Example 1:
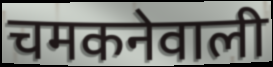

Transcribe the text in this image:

चमकनेवाली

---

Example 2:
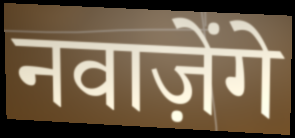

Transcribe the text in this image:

नवाज़ेंगे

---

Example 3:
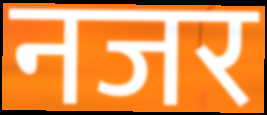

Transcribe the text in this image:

नजर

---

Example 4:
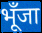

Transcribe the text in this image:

भूँजा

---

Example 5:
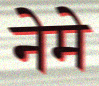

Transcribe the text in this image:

नेमे